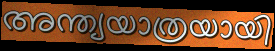
അന്ത്യയാത്രയായി